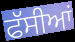
ਫੱਸੀਆਂ